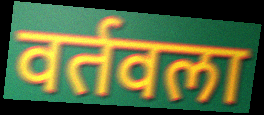
वर्तवला